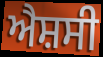
ਐਸ਼ਸੀ